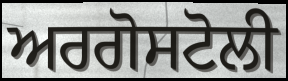
ਅਰਗੋਸਟੋਲੀ